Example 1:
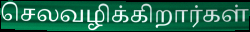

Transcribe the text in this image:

செலவழிக்கிறார்கள்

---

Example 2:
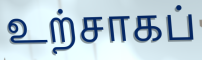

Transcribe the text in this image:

உற்சாகப்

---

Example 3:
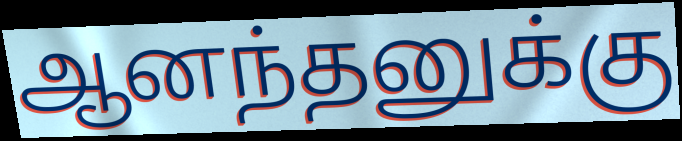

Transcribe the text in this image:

ஆனந்தனுக்கு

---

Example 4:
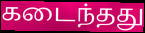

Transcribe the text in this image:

கடைந்தது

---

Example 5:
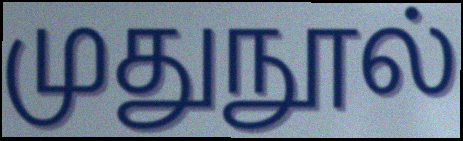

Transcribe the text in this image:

முதுநூல்